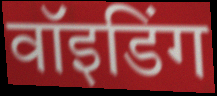
वॉइडिंग